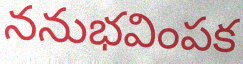
ననుభవింపక